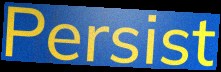
Persist